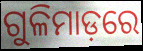
ଗୁଳିମାଡ଼ରେ